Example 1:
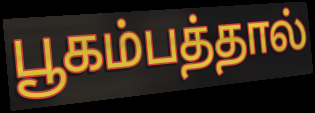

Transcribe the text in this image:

பூகம்பத்தால்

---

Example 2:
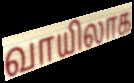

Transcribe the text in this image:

வாயிலாக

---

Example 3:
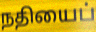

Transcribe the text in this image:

நதியைப்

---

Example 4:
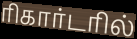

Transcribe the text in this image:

ரிகார்டரில்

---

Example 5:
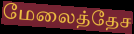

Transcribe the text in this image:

மேலைத்தேச